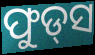
ଫୁଡ୍‌ସ